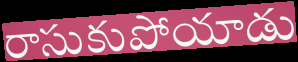
రాసుకుపోయాడు